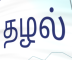
தழல்